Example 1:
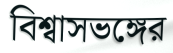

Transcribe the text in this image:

বিশ্বাসভঙ্গের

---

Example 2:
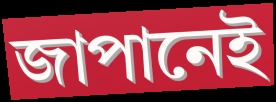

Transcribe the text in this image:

জাপানেই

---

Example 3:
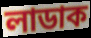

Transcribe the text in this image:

লাডাক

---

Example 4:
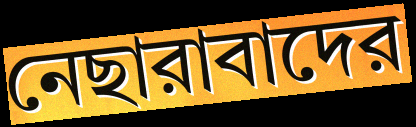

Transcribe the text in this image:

নেছারাবাদের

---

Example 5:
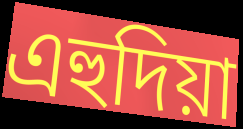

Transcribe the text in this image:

এহুদিয়া